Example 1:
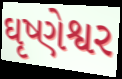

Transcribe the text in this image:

ઘૃષ્ણેશ્વર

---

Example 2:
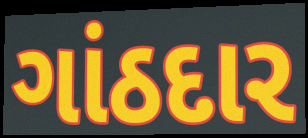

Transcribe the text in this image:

ગાંઠદાર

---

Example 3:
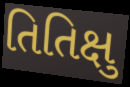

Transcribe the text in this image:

તિતિક્ષુ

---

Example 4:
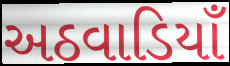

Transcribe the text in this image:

અઠવાડિયાઁ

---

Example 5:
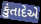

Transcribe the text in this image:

કુંતાદેએ